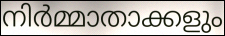
നിർമ്മാതാക്കളും